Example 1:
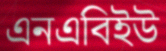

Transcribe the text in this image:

এনএবিইউ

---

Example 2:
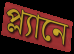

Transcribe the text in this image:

প্ল্যানে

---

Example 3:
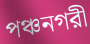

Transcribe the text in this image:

পঞ্চনগরী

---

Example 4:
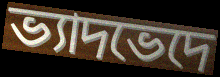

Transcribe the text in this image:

ভ্যাদভেদে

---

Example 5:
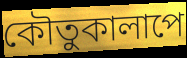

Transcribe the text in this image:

কৌতুকালাপে